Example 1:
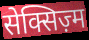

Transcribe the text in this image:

सेक्सिज़्म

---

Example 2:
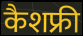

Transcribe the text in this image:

कैशफ्री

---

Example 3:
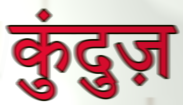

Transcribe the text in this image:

कुंदुज़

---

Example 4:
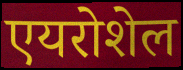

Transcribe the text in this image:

एयरोशेल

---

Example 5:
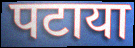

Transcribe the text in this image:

पटाया